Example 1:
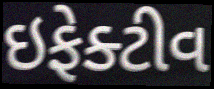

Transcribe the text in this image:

ઇફેક્ટીવ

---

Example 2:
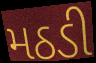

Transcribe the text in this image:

મઠડી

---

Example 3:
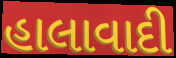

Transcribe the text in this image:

હાલાવાદી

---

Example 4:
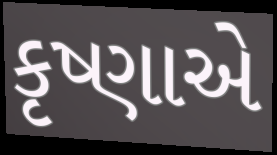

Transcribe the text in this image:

કૃષ્ણાએ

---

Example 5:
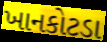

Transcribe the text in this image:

ખાનકોટડા